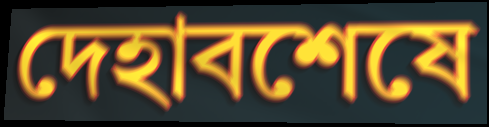
দেহাবশেষে